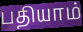
பதியாம்